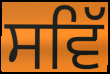
ਸਵਿੱ